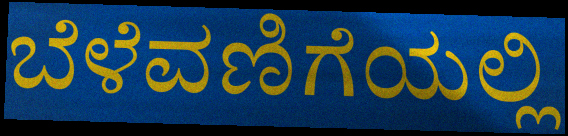
ಬೆಳೆವಣಿಗೆಯಲ್ಲಿ